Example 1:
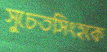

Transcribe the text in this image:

সুচেতসিংহকে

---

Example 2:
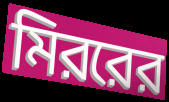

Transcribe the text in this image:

মিররের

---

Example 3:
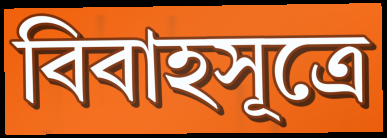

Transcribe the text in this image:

বিবাহসূত্রে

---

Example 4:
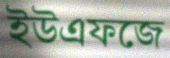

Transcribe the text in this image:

ইউএফজে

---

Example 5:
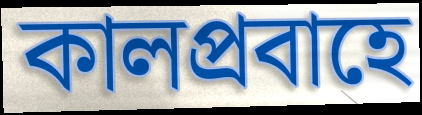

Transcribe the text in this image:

কালপ্রবাহে